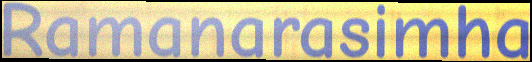
Ramanarasimha